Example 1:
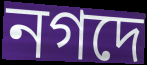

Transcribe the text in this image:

নগদে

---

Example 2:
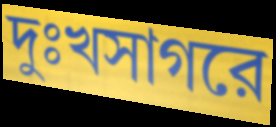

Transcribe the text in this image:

দুঃখসাগরে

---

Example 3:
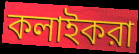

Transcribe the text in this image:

কলাইকরা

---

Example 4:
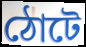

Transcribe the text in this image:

ঠোটে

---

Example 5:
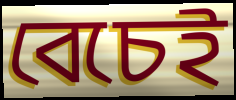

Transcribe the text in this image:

বেচেই